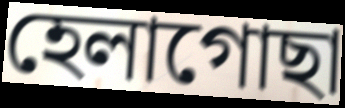
হেলাগোছা